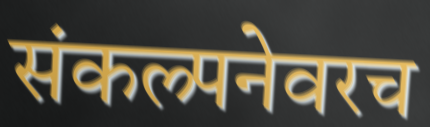
संकल्पनेवरच